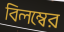
বিলম্বের